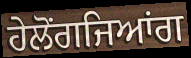
ਹੇਲੋਂਗਜਿਆਂਗ